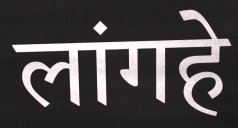
लांगहे